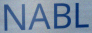
NABL